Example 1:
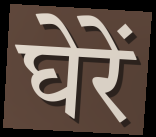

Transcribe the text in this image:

घेरें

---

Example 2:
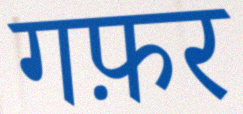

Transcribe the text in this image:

गफ़र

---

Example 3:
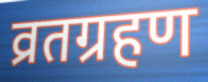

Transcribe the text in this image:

व्रतग्रहण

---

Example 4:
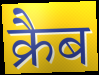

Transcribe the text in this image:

क्रैब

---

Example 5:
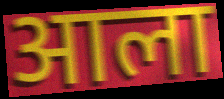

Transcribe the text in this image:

आला